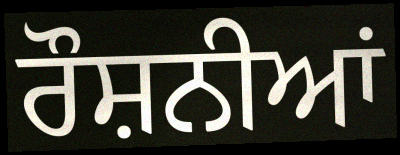
ਰੌਸ਼ਨੀਆਂ